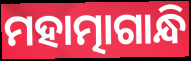
ମହାତ୍ମାଗାନ୍ଧି